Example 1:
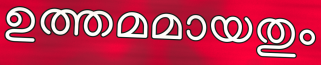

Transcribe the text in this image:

ഉത്തമമായതും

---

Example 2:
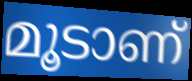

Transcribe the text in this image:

മൂടാണ്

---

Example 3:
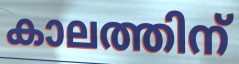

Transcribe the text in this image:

കാലത്തിന്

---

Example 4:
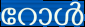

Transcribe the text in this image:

റോൾ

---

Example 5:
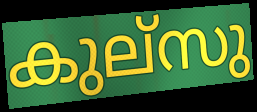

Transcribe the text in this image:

കുല്സു